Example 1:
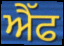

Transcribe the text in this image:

ਐੈੱਫ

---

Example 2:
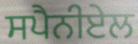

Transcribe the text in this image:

ਸਪੈਨੀਏਲ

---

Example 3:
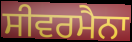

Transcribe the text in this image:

ਸੀਵਰਮੈਨਾ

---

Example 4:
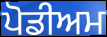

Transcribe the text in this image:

ਪੋਡੀਅਮ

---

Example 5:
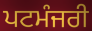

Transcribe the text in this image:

ਪਟਮੰਜਰੀ